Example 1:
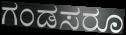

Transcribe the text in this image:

ಗಂಡಸರೂ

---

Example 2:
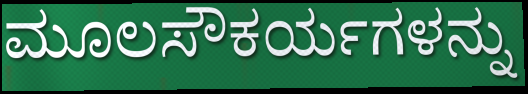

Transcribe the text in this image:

ಮೂಲಸೌಕರ್ಯಗಳನ್ನು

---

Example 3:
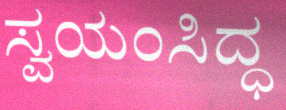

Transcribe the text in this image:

ಸ್ವಯಂಸಿದ್ಧ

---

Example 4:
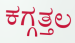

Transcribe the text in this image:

ಕಗ್ಗತ್ತಲ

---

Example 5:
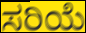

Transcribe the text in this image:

ಸರಿಯೆ